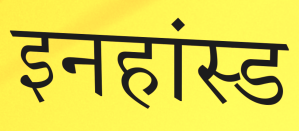
इनहांस्ड